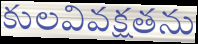
కులవివక్షతను